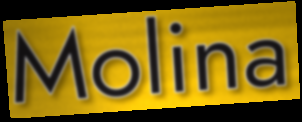
Molina